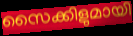
സൈക്കിളുമായി